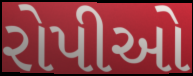
રોપીઓ